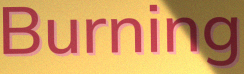
Burning